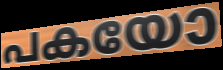
പകയോ